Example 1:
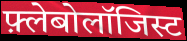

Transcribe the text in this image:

फ़्लेबोलॉजिस्ट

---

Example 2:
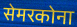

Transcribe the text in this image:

सेमरकोना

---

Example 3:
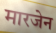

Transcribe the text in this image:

मारजेन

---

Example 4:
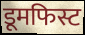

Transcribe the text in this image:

डूमफिस्ट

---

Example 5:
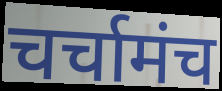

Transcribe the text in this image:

चर्चामंच